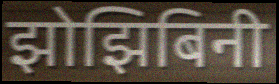
झोझिबिनी